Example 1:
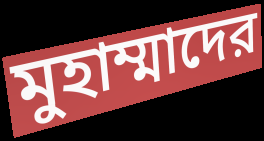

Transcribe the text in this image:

মুহাম্মাদের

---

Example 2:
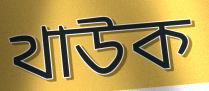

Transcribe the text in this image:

থাউক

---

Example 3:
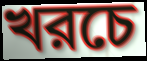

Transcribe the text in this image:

খরচে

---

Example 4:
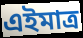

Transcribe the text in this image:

এইমাত্র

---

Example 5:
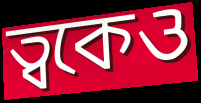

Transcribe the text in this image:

ত্বকেও